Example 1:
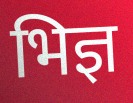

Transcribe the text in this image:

भिज्ञ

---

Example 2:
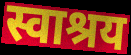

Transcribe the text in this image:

स्वाश्रय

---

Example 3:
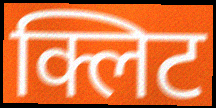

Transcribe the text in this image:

क्लिट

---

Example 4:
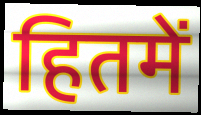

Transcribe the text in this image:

हितमें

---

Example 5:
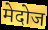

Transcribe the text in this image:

मेदोज